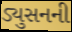
ડ્યુસનની